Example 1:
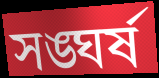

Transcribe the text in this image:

সঙ্ঘর্ষ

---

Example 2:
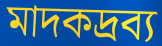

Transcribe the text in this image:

মাদকদ্রব্য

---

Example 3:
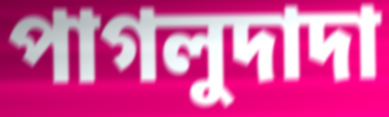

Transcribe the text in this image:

পাগলুদাদা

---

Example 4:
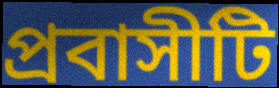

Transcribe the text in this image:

প্রবাসীটি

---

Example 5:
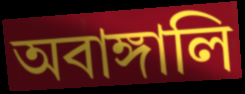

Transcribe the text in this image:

অবাঙ্গালি